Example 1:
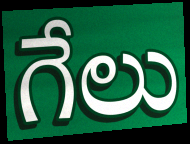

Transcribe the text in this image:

గేలు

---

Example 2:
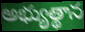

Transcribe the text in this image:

అభ్యుత్థాన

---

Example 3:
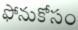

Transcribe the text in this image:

ఫోనుకోసం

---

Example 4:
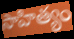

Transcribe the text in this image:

సాహిత్యం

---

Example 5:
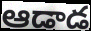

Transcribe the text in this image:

ఆడాడ